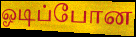
ஓடிப்போன